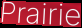
Prairie